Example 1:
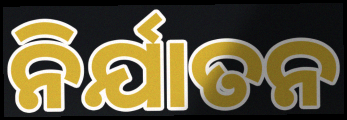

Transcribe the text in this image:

ନିର୍ଯାତନ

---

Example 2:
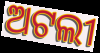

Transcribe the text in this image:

ଅଟଲୀ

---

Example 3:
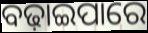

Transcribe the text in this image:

ବଢ଼ାଇପାରେ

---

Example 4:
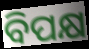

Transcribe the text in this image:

ବିପକ୍ଷ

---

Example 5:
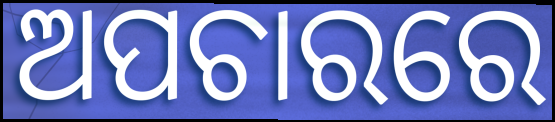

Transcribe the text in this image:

ଅପଚାରରେ